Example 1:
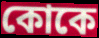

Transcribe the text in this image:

কোকে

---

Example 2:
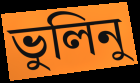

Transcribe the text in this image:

ভুলিনু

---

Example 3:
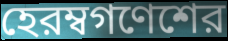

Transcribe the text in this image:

হেরম্বগণেশের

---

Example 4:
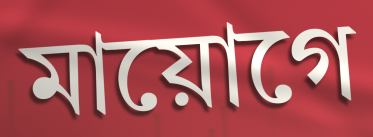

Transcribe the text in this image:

মায়োগে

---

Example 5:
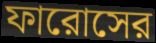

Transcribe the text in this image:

ফারোসের